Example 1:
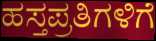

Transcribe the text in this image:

ಹಸ್ತಪ್ರತಿಗಳಿಗೆ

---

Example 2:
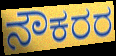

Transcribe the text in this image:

ನೌಕರರ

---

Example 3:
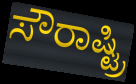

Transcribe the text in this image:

ಸೌರಾಷ್ಟ್ರಿ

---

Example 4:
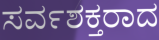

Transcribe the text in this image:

ಸರ್ವಶಕ್ತರಾದ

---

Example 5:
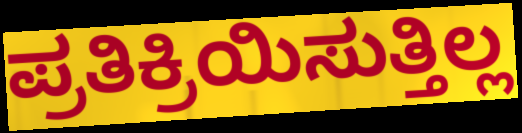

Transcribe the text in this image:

ಪ್ರತಿಕ್ರಿಯಿಸುತ್ತಿಲ್ಲ